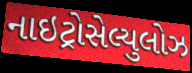
નાઇટ્રોસેલ્યુલોઝ